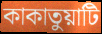
কাকাতুয়াটি